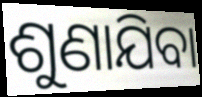
ଶୁଣାଯିବା